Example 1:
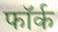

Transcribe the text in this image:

फॉर्क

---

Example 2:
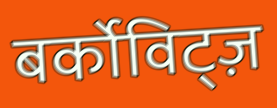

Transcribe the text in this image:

बर्कोविट्ज़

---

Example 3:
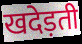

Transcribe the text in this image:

खदेड़ती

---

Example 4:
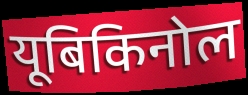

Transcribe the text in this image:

यूबिकिनोल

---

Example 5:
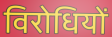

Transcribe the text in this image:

विरोधियों